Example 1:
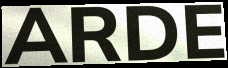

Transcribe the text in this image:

ARDE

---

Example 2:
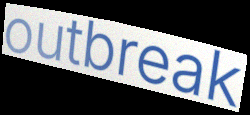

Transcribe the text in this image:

outbreak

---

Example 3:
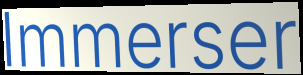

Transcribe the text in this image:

Immerser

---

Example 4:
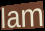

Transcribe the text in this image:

Iam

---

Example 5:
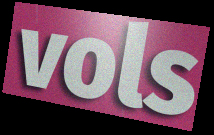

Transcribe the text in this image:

vols